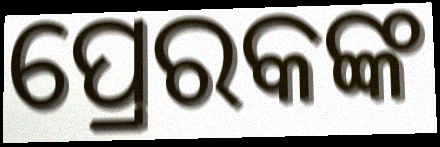
ପ୍ରେରକଙ୍କ